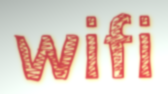
wifi